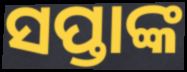
ସପ୍ତାଙ୍କ